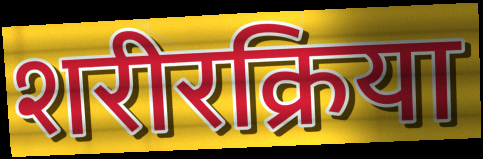
शरीरक्रिया